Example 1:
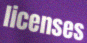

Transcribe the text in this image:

licenses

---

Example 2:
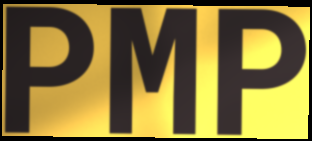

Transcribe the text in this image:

PMP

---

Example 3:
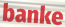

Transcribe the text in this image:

banke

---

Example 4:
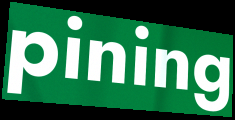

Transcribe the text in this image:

pining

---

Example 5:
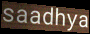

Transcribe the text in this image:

saadhya